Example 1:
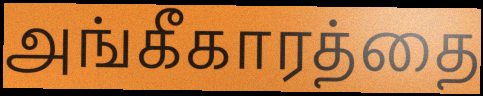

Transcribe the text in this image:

அங்கீகாரத்தை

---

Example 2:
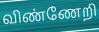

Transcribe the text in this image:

விண்ணேறி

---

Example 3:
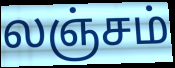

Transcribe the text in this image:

லஞ்சம்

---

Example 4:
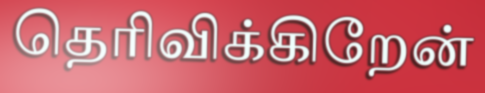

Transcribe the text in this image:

தெரிவிக்கிறேன்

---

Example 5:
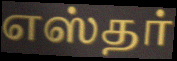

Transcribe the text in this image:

எஸ்தர்